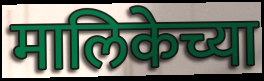
मालिकेच्या